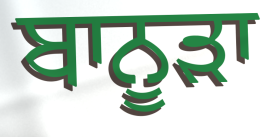
ਬਾਨੂੜਾ